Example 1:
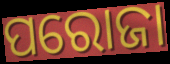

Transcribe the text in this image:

ପରୋଜା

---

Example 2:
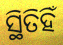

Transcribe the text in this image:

ସ୍ଥିତିହିଁ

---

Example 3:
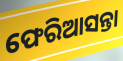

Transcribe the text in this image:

ଫେରିଆସନ୍ତା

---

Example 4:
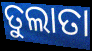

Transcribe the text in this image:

ତୁଲାତା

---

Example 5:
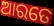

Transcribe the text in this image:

ଆରତେ